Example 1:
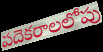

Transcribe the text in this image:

పదెకరాలలోపు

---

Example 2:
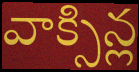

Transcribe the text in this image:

వాక్సిన్ల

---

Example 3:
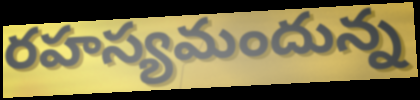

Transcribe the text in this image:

రహస్యమందున్న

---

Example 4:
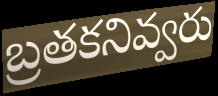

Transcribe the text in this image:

బ్రతకనివ్వరు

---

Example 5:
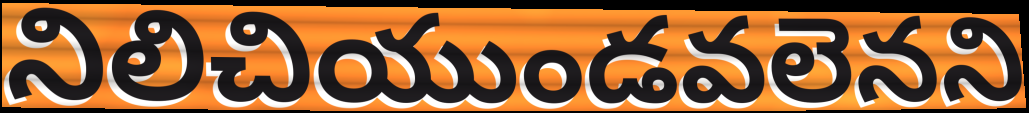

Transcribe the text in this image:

నిలిచియుండవలెనని